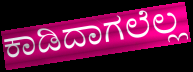
ಕಾಡಿದಾಗಲೆಲ್ಲ